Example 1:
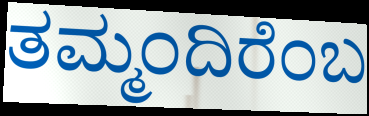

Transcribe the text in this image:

ತಮ್ಮಂದಿರೆಂಬ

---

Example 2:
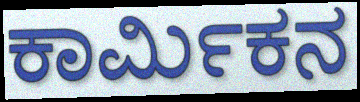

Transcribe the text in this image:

ಕಾರ್ಮಿಕನ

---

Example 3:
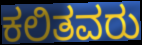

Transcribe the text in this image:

ಕಲಿತವರು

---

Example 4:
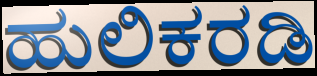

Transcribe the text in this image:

ಹುಲಿಕರಡಿ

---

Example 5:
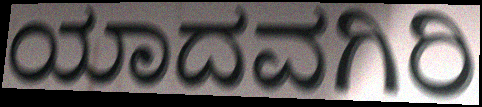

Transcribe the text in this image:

ಯಾದವಗಿರಿ